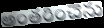
అంతరించెను